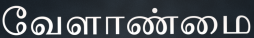
வேளாண்மை